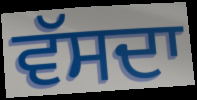
ਵੱਸਦਾ